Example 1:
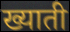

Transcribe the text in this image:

ख्याती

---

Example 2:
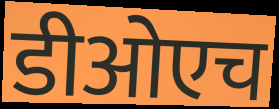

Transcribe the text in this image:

डीओएच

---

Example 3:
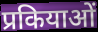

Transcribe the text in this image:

प्रकियाओं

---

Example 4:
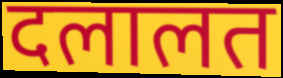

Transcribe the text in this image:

दलालत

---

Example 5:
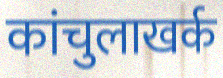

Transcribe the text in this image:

कांचुलाखर्क